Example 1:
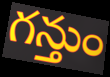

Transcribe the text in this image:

గన్తుం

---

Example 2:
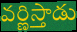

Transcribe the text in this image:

వర్ణిస్తాడు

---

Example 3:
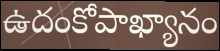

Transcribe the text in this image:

ఉదంకోపాఖ్యానం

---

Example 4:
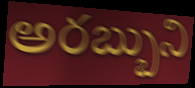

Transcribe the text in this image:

అరబ్బుని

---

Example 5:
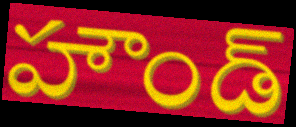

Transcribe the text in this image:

హౌండ్